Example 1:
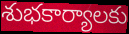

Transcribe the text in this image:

శుభకార్యాలకు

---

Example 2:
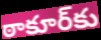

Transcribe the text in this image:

ఠాకూర్‌కు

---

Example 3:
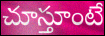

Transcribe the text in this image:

చూస్తూంటే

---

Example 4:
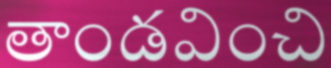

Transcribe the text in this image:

తాండవించి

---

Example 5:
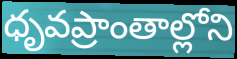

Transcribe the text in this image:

ధృవప్రాంతాల్లోని